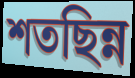
শতছিন্ন